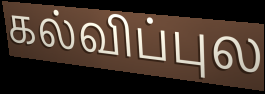
கல்விப்புல